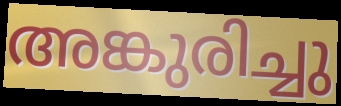
അങ്കുരിച്ചു